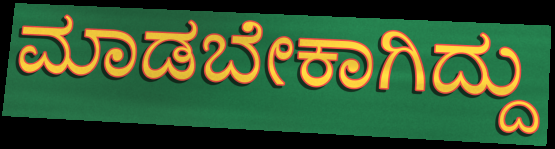
ಮಾಡಬೇಕಾಗಿದ್ದು